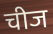
चीज